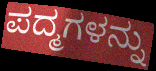
ಪದ್ಮಗಳನ್ನು